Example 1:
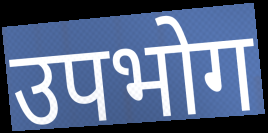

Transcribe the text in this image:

उपभोग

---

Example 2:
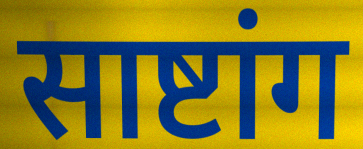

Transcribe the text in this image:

साष्टांग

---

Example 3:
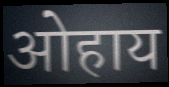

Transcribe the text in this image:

ओहाय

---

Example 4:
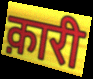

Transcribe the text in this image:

क़ारी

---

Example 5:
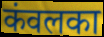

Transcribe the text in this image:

कंवलका